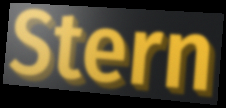
Stern